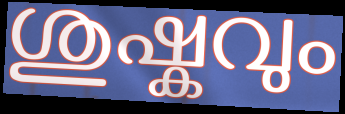
ശുഷ്കവും